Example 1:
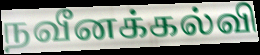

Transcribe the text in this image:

நவீனக்கல்வி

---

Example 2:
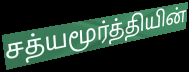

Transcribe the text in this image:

சத்யமூர்த்தியின்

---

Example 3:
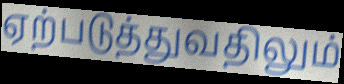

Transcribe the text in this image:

ஏற்படுத்துவதிலும்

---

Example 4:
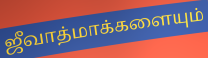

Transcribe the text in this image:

ஜீவாத்மாக்களையும்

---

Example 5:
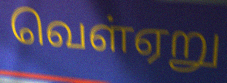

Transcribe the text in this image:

வெள்ஏறு